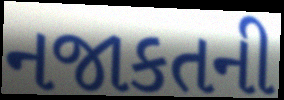
નજાકતની